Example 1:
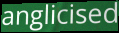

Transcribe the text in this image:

anglicised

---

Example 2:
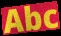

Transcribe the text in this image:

Abc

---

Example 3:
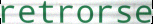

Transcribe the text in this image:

retrorse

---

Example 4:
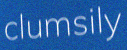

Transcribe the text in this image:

clumsily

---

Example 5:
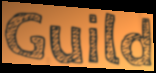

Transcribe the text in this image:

Guild